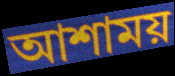
আশাময়